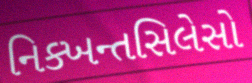
નિક્ખન્તસિલેસો